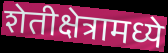
शेतीक्षेत्रामध्ये